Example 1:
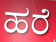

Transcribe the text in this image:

ಹರೆ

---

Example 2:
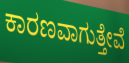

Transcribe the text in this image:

ಕಾರಣವಾಗುತ್ತೇವೆ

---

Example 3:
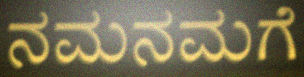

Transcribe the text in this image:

ನಮನಮಗೆ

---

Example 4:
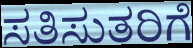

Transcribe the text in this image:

ಸತಿಸುತರಿಗೆ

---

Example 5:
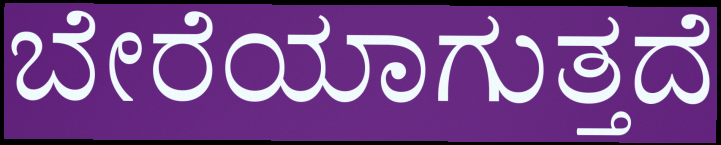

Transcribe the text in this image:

ಬೇರೆಯಾಗುತ್ತದೆ